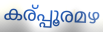
കര്പ്പൂരമഴ